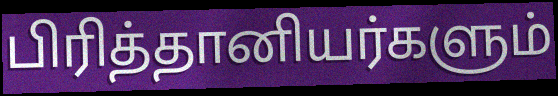
பிரித்தானியர்களும்